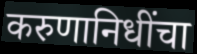
करुणानिधींचा